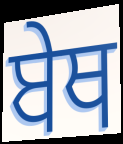
ਬੇਥ